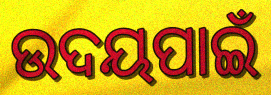
ଉଦୟପାଇଁ